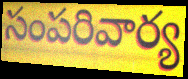
సంపరివార్య